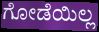
ಗೋಡೆಯಿಲ್ಲ